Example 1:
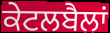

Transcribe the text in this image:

ਕੇਟਲਬੈਲਾਂ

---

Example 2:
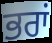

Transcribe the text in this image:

ਭਰਾਂ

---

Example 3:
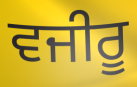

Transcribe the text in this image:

ਵਜੀਰੂ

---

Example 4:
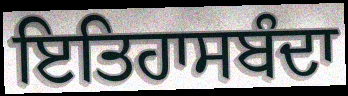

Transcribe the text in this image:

ਇਤਿਹਾਸਬੰਦਾ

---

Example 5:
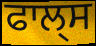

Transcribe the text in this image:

ਫਾਲ੍ਸ